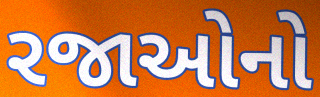
રજાઓનો